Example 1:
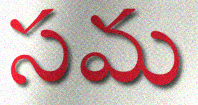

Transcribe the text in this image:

సమ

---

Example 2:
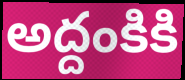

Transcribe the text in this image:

అద్దంకికి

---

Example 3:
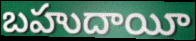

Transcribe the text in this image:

బహుదాయీ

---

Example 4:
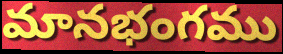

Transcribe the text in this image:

మానభంగము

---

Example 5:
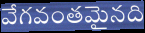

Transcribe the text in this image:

వేగవంతమైనది